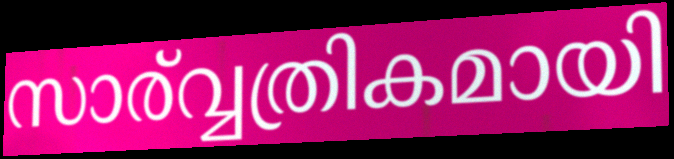
സാര്വ്വത്രികമായി